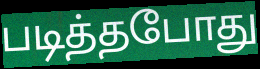
படித்தபோது